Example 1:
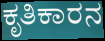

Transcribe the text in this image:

ಕೃತಿಕಾರನ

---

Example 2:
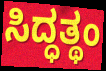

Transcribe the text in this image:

ಸಿದ್ಧತ್ಥಂ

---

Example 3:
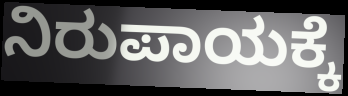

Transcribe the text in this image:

ನಿರುಪಾಯಕ್ಕೆ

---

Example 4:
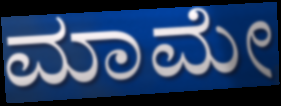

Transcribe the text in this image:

ಮಾಮೇ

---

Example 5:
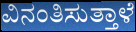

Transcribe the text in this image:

ವಿನಂತಿಸುತ್ತಾಳೆ